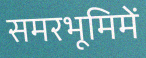
समरभूमिमें